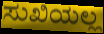
ಸುಖಿಯಲ್ಲ